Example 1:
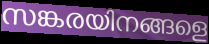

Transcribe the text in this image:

സങ്കരയിനങ്ങളെ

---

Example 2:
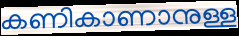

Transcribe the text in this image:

കണികാണാനുള്ള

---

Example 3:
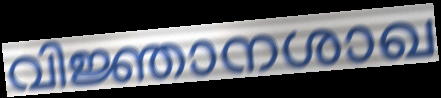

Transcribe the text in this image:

വിജ്ഞാനശാഖ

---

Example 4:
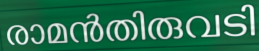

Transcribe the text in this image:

രാമൻതിരുവടി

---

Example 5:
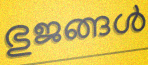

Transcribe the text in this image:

ഭുജങ്ങൾ